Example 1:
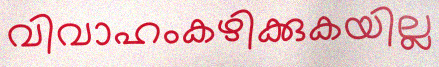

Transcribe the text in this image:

വിവാഹംകഴിക്കുകയില്ല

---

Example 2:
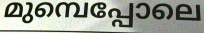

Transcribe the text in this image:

മുമ്പെപ്പോലെ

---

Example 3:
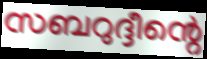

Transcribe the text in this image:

സബറുദ്ദീന്റെ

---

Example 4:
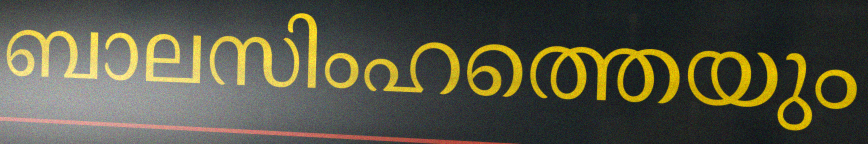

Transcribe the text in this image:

ബാലസിംഹത്തെയും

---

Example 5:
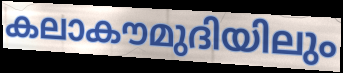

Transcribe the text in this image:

കലാകൗമുദിയിലും